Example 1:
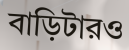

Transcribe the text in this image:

বাড়িটারও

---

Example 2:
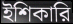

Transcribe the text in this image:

ইশিকারি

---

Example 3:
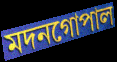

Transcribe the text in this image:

মদনগোপাল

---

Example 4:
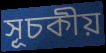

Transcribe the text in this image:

সূচকীয়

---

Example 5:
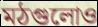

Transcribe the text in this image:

মঠগুলোও